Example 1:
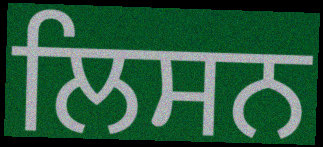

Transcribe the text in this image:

ਲਿਸਨ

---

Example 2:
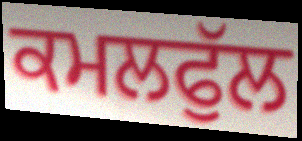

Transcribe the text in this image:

ਕਮਲਫੁੱਲ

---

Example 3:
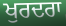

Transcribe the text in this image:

ਖੁਰਦਰਾ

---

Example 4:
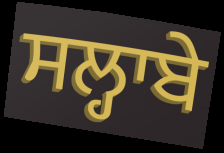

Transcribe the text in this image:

ਸਲ੍ਹਾਬੇ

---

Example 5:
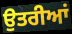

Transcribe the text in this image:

ਉਤਰੀਆਂ